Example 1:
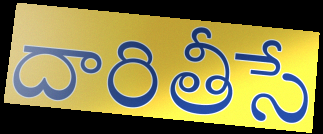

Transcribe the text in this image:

దారితీసే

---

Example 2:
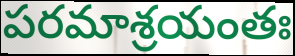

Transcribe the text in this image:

పరమాశ్రయంతః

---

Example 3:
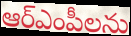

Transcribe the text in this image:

ఆర్ఎంపీలను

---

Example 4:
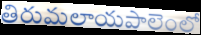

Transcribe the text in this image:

తిరుమలాయపాలెంలో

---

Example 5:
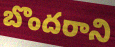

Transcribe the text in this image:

బొందరాని